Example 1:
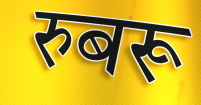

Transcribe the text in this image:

रुबरू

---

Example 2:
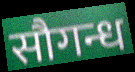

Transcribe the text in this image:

सौगन्ध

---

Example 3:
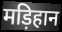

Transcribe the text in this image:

मड़िहान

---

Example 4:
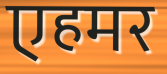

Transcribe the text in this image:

एहमर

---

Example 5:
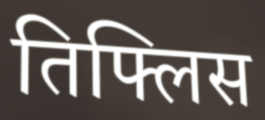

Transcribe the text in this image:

तिफ्लिस